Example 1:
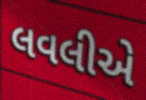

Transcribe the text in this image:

લવલીએ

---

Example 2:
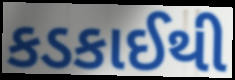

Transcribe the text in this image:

કડકાઈથી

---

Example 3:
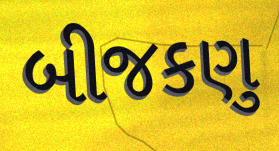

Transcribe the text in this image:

બીજકણુ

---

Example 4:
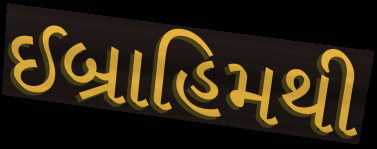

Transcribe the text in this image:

ઈબ્રાહિમથી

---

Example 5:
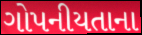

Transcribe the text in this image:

ગોપનીયતાના